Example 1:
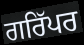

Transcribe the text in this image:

ਗਰਿੱਪਰ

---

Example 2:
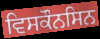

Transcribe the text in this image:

ਵਿਸਕੌਨਸਿਨ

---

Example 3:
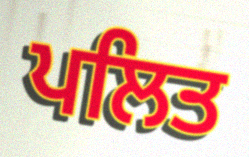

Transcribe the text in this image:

ਪਲਿਤ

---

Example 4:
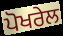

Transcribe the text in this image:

ਪੋਖਰੇਲ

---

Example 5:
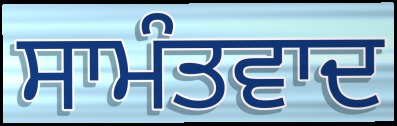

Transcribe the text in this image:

ਸਾਮੰਤਵਾਦ